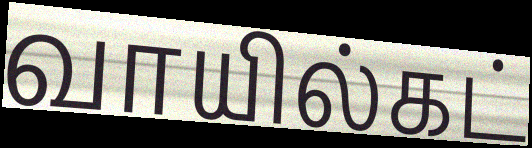
வாயில்கட்